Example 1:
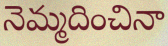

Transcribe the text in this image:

నెమ్మదించినా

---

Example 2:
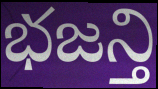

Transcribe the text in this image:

భజన్తి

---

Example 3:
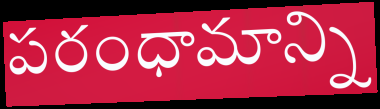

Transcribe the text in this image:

పరంధామాన్ని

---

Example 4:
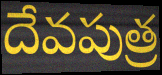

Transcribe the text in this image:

దేవపుత్ర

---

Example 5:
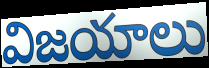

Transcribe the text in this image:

విజయాలు